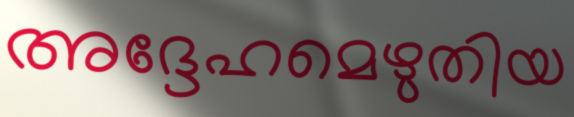
അദ്ദേഹമെഴുതിയ